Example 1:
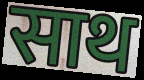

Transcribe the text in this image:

साथ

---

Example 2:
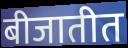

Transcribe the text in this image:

बीजातीत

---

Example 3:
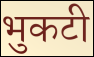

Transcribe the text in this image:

भुकटी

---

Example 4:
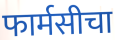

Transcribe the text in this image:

फार्मसीचा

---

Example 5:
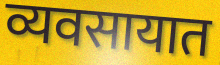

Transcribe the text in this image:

व्यवसायात